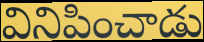
వినిపించాడు